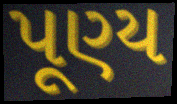
પૂણ્ય